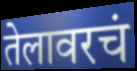
तेलावरचं